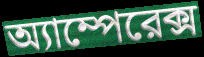
অ্যাম্পেরেক্স